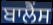
ਬਾਲੈਂਸ